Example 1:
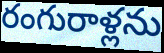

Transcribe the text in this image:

రంగురాళ్లను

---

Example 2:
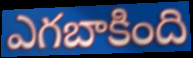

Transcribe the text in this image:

ఎగబాకింది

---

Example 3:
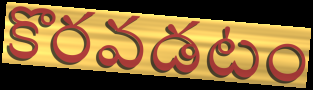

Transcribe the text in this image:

కొరవడటం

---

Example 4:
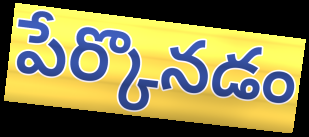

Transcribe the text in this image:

పేర్కొనడం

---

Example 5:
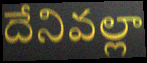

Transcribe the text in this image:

దేనివల్లా